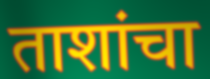
ताशांचा